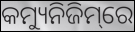
କମ୍ୟୁନିଜିମ୍‌ରେ